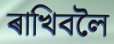
ৰাখিবলৈ